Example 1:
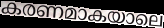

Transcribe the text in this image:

കരണമാകയാലെ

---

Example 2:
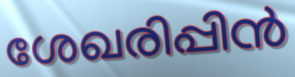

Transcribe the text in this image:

ശേഖരിപ്പിൻ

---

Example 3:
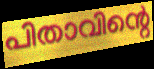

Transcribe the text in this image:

പിതാവിന്റെ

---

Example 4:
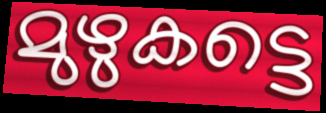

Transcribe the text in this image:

മുഴുകട്ടെ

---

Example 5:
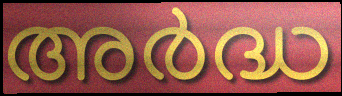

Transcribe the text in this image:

അർദ്ധ